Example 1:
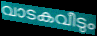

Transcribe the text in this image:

വാടകവീടും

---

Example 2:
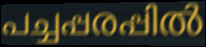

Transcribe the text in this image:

പച്ചപ്പരപ്പിൽ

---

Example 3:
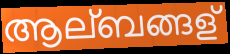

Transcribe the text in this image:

ആല്ബങ്ങള്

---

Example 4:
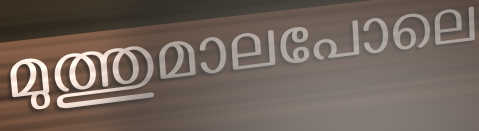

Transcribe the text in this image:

മുത്തുമാലപോലെ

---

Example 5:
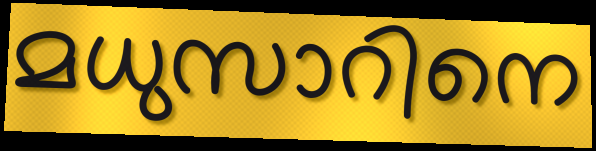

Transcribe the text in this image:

മധുസാറിനെ